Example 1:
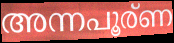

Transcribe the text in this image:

അന്നപൂര്ണ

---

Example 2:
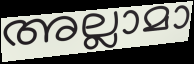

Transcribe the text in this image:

അല്ലാമാ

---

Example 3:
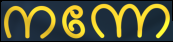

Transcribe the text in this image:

നന്നേ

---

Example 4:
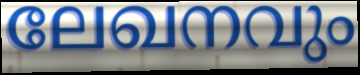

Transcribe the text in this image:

ലേഖനവും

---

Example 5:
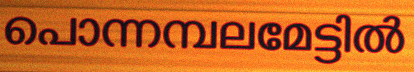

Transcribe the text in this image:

പൊന്നമ്പലമേട്ടിൽ